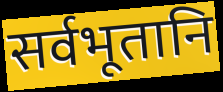
सर्वभूतानि